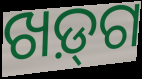
ଖଡ଼୍‌ଗ